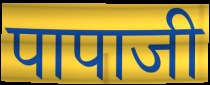
पापाजी